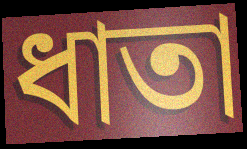
ধাতা